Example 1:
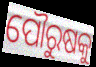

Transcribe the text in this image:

ପୌରୁଷକୁ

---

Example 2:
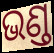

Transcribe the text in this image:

ଭଣ୍ଡ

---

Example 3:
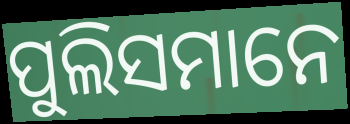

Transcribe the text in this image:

ପୁଲିସମାନେ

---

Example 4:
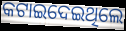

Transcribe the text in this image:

କଟାଇଦେଇଥିଲେ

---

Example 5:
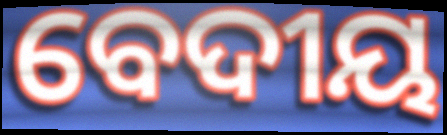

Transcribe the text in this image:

ବେଦୀୟ